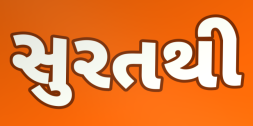
સુરતથી